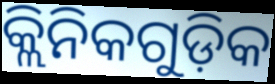
କ୍ଲିନିକଗୁଡ଼ିକ